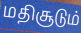
மதிசூடும்